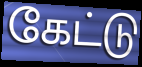
கேட்டு